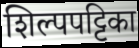
शिल्पपट्टिका